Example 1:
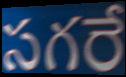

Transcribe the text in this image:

సగరే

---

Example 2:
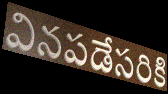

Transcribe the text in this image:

వినపడేసరికి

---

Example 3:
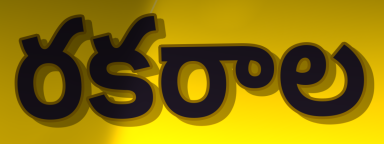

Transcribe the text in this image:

రకరాల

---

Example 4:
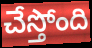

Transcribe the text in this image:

చేస్తోంది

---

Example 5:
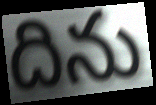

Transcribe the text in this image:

దిను